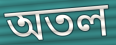
অতল